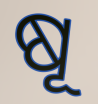
ଷୂ